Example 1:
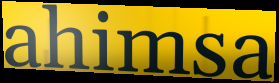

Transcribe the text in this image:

ahimsa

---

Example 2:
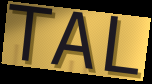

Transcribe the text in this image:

TAL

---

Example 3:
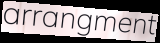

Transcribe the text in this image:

arrangment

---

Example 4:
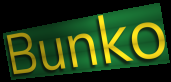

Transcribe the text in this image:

Bunko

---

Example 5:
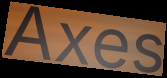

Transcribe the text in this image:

Axes